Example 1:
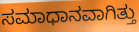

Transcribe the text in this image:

ಸಮಾಧಾನವಾಗಿತ್ತು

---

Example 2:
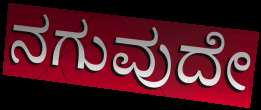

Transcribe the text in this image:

ನಗುವುದೇ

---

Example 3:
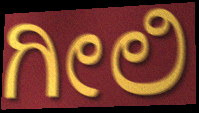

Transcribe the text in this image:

ಗೀಲಿ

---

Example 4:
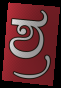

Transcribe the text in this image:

ಶ್ರ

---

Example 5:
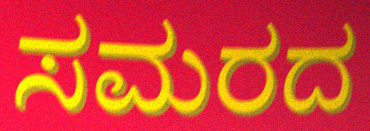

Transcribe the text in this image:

ಸಮರದ